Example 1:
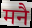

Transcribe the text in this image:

मनै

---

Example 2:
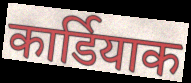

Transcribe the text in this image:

कार्डियाक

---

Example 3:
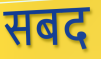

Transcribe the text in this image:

सबद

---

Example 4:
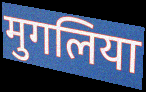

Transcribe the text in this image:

मुगलिया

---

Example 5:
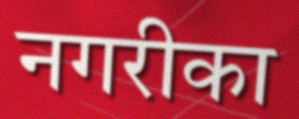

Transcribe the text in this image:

नगरीका